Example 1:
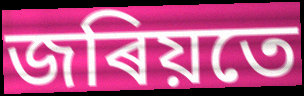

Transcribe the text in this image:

জৰিয়তে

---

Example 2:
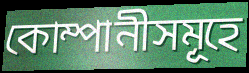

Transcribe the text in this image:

কোম্পানীসমূহে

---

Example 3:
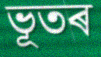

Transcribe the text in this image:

ভূতৰ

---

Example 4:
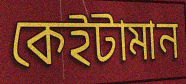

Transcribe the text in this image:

কেইটামান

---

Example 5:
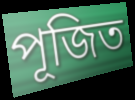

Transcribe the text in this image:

পূজিত